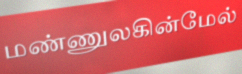
மண்ணுலகின்மேல்